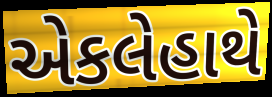
એકલેહાથે